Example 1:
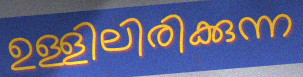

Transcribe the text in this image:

ഉള്ളിലിരിക്കുന്ന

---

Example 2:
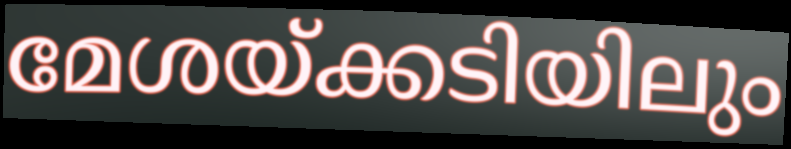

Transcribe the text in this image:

മേശയ്ക്കടിയിലും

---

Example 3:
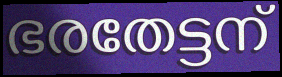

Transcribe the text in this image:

ഭരതേട്ടന്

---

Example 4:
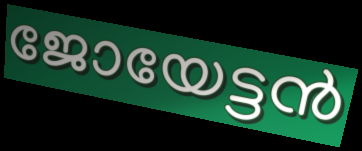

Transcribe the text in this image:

ജോയേട്ടൻ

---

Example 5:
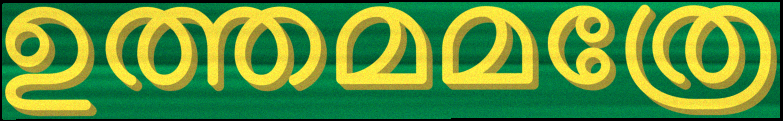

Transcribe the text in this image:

ഉത്തമമത്രേ